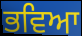
ਭਵਿਆ